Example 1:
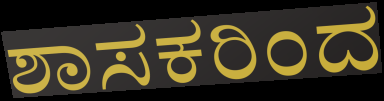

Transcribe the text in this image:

ಶಾಸಕರಿಂದ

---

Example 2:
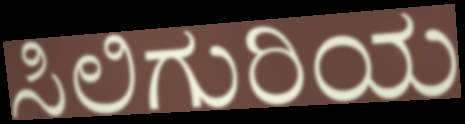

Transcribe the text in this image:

ಸಿಲಿಗುರಿಯ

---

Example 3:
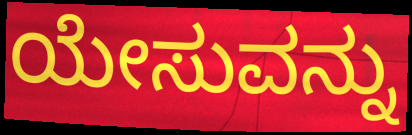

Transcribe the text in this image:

ಯೇಸುವನ್ನು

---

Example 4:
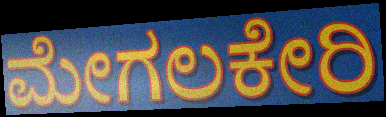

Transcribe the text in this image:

ಮೇಗಲಕೇರಿ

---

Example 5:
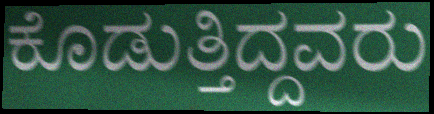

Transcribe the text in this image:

ಕೊಡುತ್ತಿದ್ದವರು